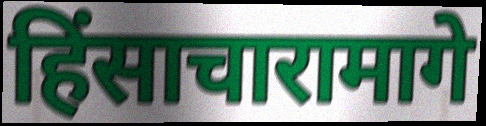
हिंसाचारामागे